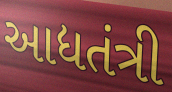
આદ્યતંત્રી